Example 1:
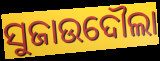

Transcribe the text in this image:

ସୁଜାଉଦୌଲା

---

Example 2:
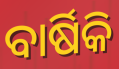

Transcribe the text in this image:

ବାର୍ଷିକି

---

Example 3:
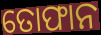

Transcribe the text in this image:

ତୋଫାନ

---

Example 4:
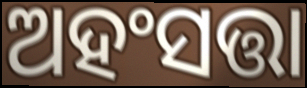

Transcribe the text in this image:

ଅହଂସତ୍ତା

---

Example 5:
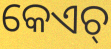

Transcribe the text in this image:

କେଏଚ୍